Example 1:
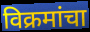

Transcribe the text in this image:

विक्रमांचा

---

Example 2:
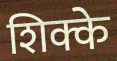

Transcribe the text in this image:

शिक्के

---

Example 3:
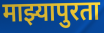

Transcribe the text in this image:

माझ्यापुरता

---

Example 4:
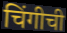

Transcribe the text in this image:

चिंगीची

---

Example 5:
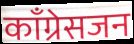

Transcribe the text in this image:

काँग्रेसजन